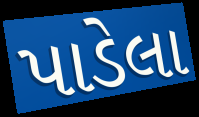
પાડેલા